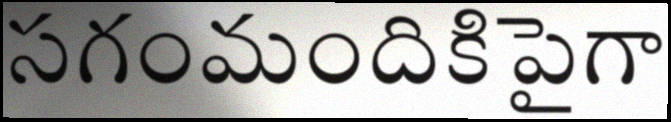
సగంమందికిపైగా